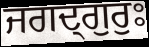
ਜਗਦ੍ਗੁਰੁਃ